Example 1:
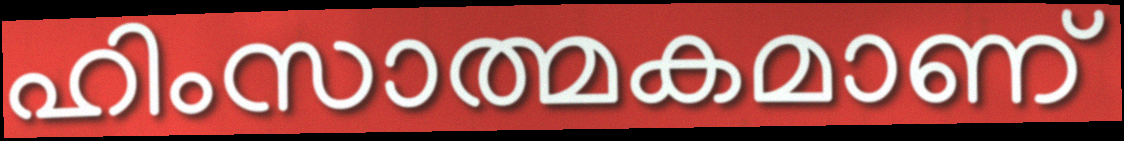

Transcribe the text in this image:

ഹിംസാത്മകമാണ്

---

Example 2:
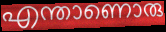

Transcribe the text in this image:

എന്താണൊരു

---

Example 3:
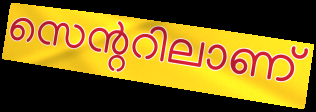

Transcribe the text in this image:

സെന്ററിലാണ്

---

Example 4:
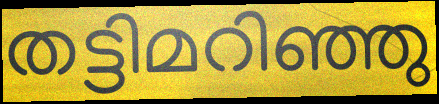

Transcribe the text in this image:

തട്ടിമറിഞ്ഞു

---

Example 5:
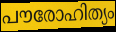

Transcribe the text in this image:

പൗരോഹിത്യം